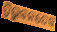
ତ୍ରିଭୁବନଦେବ